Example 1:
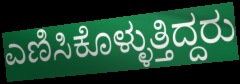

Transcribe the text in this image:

ಎಣಿಸಿಕೊಳ್ಳುತ್ತಿದ್ದರು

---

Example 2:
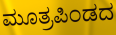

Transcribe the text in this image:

ಮೂತ್ರಪಿಂಡದ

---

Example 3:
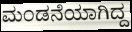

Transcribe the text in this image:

ಮಂಡನೆಯಾಗಿದ್ದ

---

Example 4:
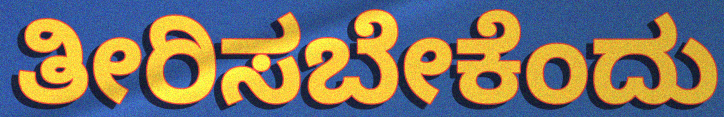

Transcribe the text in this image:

ತೀರಿಸಬೇಕೆಂದು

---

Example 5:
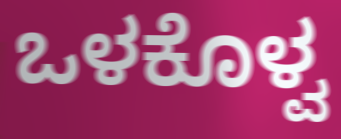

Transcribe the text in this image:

ಒಳಕೊಳ್ವ